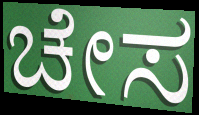
ಚೇಸ